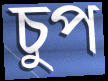
চুপ